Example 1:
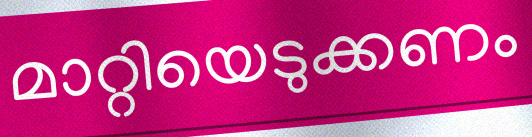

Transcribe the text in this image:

മാറ്റിയെടുക്കണം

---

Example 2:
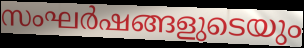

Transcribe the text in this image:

സംഘർഷങ്ങളുടെയും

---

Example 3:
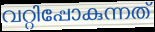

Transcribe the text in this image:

വറ്റിപ്പോകുന്നത്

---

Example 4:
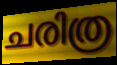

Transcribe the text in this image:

ചരിത്ര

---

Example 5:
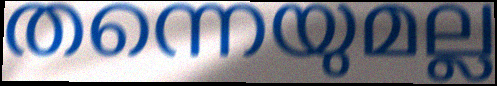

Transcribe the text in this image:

തന്നെയുമല്ല